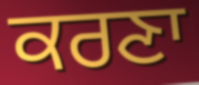
ਕਰਣਾ